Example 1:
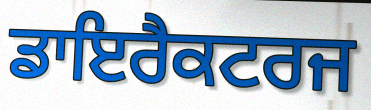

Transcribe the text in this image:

ਡਾਇਰੈਕਟਰਜ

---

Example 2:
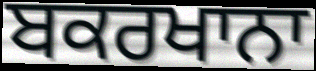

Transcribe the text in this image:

ਬਕਰਖਾਨਾ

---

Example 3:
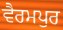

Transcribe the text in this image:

ਵੈਰਮਪੁਰ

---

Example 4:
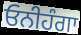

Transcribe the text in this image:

ਓਨੀਹੰਗਾ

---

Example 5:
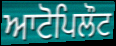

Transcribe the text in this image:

ਆਟੋਪਿਲੌਟ